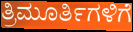
ತ್ರಿಮೂರ್ತಿಗಳಿಗೆ